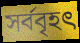
সর্ববৃহৎ